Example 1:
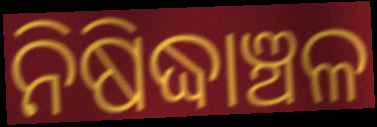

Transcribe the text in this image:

ନିଷିଦ୍ଧାଞ୍ଚଳ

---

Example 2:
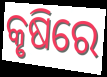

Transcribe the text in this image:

କୃଷିରେ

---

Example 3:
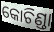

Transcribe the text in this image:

କୋଚିଣ୍ଡା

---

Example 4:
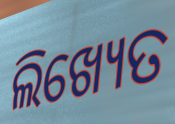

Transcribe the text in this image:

ଲିଖ୍ଯେତ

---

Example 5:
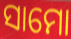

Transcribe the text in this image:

ସାମୋ